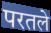
परतले